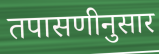
तपासणीनुसार